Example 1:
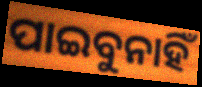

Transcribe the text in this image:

ପାଇବୁନାହିଁ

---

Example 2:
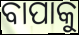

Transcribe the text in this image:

ବାପାକୁ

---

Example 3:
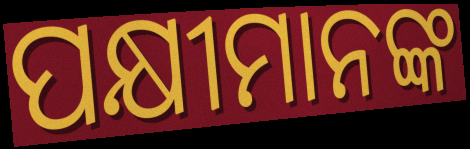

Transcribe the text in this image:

ପକ୍ଷୀମାନଙ୍କ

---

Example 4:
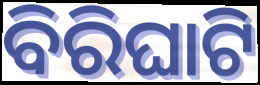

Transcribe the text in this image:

ବିରିଘାଟି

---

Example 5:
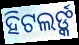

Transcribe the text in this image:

ହିଟଲର୍ଙ୍କ